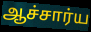
ஆச்சார்ய